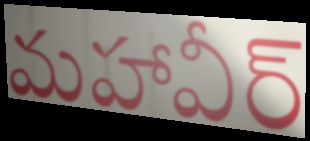
మహావీర్